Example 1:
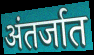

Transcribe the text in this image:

अंतर्जात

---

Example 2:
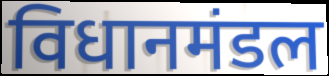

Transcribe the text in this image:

विधानमंडल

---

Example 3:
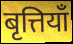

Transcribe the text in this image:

बृत्तियाँ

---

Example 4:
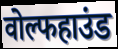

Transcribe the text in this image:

वोल्फहाउंड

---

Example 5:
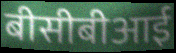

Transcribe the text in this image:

बीसीबीआई